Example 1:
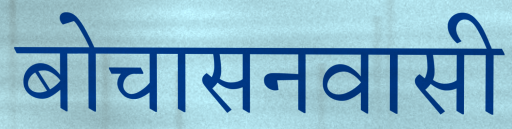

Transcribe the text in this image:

बोचासनवासी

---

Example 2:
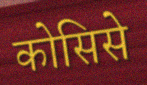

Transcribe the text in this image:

कोसिसे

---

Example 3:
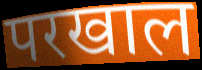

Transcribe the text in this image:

परखाल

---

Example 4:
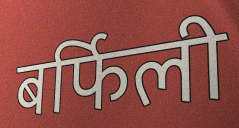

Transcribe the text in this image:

बर्फिली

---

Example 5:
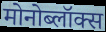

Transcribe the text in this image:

मोनोब्लॉक्स